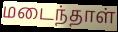
மடைந்தாள்